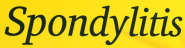
Spondylitis